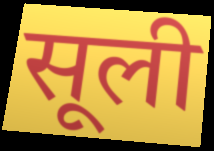
सूली